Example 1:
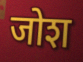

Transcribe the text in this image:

जोश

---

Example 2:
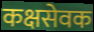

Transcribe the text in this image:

कक्षसेवक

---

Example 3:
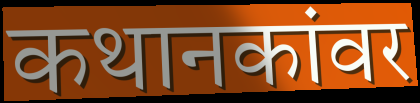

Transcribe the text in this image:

कथानकांवर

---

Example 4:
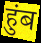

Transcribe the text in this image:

हुंब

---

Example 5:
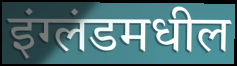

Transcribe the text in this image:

इंग्‍लंडमधील